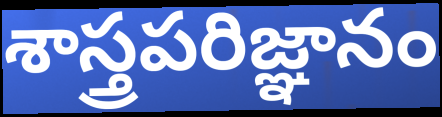
శాస్త్రపరిజ్ఞానం